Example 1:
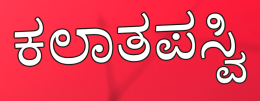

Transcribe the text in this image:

ಕಲಾತಪಸ್ವಿ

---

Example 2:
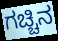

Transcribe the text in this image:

ಗಚ್ಚಿನ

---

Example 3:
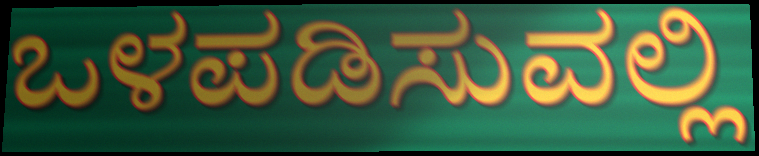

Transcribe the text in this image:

ಒಳಪಡಿಸುವಲ್ಲಿ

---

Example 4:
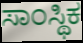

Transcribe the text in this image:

ಸಾಂಸ್ಥಿಕ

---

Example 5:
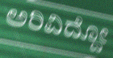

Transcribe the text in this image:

ಅರಿವಿದ್ದೋ